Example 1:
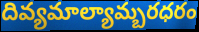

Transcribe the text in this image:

దివ్యమాల్యామ్బరధరం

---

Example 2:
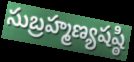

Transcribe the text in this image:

సుబ్రహ్మణ్యషష్ఠి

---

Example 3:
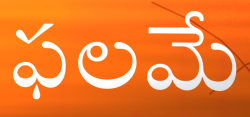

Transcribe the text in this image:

ఫలమే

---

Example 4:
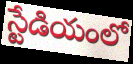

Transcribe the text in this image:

స్టేడియంలో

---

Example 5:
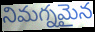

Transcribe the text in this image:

నిమగ్నమైన